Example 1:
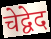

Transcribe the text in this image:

चेद्वेद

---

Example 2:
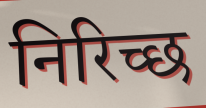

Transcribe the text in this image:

निरिच्छ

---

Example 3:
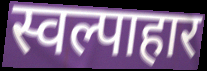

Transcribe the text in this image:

स्वल्पाहार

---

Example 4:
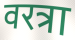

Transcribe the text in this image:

वरत्रा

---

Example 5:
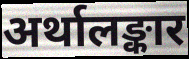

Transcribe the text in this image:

अर्थालङ्कार